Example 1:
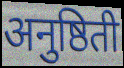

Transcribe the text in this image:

अनुष्ठिती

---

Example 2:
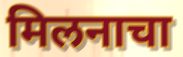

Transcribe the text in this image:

मिलनाचा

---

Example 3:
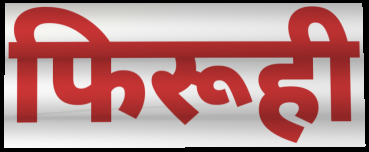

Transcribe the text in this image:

फिरूही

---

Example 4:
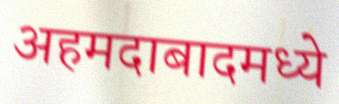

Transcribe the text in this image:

अहमदाबादमध्ये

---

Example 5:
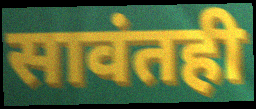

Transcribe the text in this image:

सावंतही